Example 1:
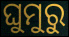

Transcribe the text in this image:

ଘୁମୁରୁ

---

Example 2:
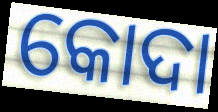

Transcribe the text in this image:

କୋଦା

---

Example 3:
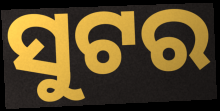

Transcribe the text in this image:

ସୁଟର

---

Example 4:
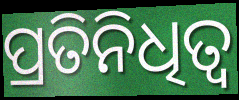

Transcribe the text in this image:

ପ୍ରତିନିଧିତ୍ୱ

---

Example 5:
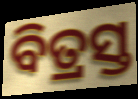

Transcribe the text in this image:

ବିତ୍ରସ୍ତ